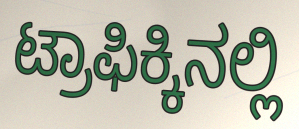
ಟ್ರಾಫಿಕ್ಕಿನಲ್ಲಿ